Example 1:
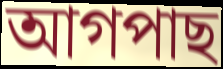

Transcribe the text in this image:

আগপাছ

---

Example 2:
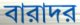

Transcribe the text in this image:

বারাদর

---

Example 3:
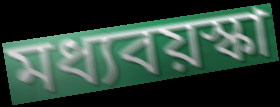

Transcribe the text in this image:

মধ্যবয়স্কা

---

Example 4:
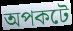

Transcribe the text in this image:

অপকটে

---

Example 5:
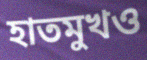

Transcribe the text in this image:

হাতমুখও